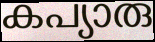
കപ്യാരു